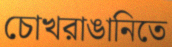
চোখরাঙানিতে